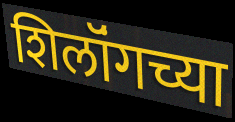
शिलॉंगच्या